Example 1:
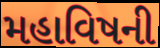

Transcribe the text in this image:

મહાવિષની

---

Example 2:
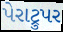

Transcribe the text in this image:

પેરાટ્રુપર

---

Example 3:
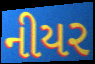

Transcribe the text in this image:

નીયર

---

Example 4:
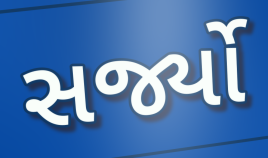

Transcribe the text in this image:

સર્જ્યો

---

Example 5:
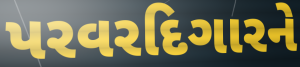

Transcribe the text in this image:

પરવરદિગારને